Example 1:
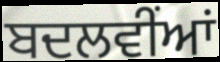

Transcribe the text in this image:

ਬਦਲਵੀਂਆਂ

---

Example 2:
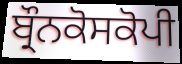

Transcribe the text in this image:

ਬ੍ਰੌਨਕੋਸਕੋਪੀ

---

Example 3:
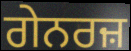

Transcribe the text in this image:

ਗੇਨਰਜ਼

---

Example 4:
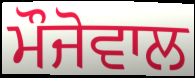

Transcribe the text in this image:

ਮੌਜੋਵਾਲ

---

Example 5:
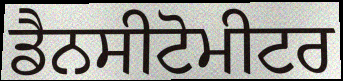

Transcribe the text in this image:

ਡੈਨਸੀਟੋਮੀਟਰ